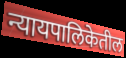
न्यायपालिकेतील